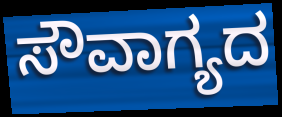
ಸೌವಾಗ್ಯದ